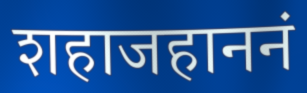
शहाजहाननं